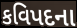
કવિપદના